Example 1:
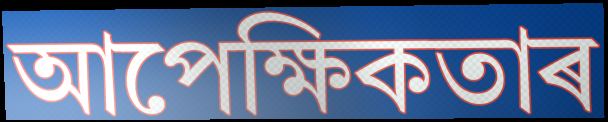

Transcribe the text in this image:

আপেক্ষিকতাৰ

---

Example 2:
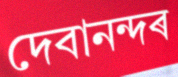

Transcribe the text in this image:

দেবানন্দৰ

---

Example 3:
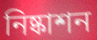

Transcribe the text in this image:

নিষ্কাশন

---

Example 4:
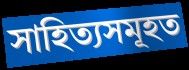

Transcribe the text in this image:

সাহিত্যসমূহত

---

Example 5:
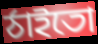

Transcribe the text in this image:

ঠাইতো